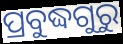
ପ୍ରବୁଦ୍ଧଗୁରୁ